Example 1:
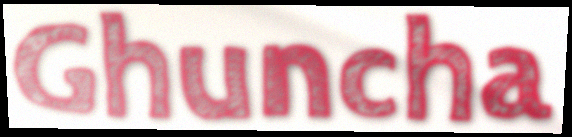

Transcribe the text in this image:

Ghuncha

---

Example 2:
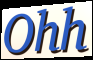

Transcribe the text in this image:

Ohh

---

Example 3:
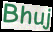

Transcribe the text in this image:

Bhuj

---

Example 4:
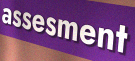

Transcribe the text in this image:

assesment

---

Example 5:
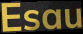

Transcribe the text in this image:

Esau